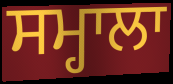
ਸਮ੍ਹ੍ਹਾਲਾ